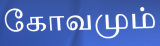
கோவமும்